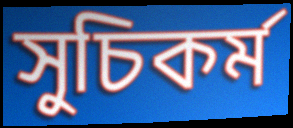
সুচিকর্ম